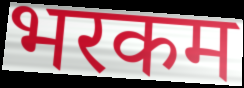
भरकम